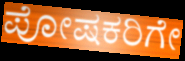
ಪೋಷಕರಿಗೇ